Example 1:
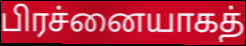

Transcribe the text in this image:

பிரச்னையாகத்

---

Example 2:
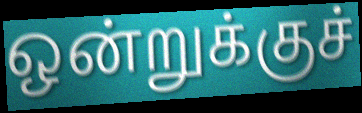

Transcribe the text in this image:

ஒன்றுக்குச்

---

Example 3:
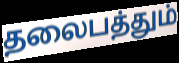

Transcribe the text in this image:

தலைபத்தும்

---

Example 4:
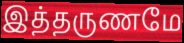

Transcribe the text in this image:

இத்தருணமே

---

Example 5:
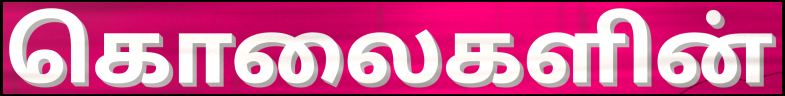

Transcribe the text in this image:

கொலைகளின்